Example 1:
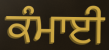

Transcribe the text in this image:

ਕੰਮਾਈ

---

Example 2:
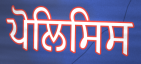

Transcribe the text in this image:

ਪੋਲਿਸਿਸ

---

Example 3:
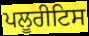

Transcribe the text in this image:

ਪਲੂਰੀਟਿਸ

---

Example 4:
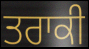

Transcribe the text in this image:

ਤਰਾਕੀ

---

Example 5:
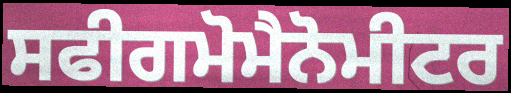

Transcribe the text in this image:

ਸਫੀਗਮੋਮੈਨੋਮੀਟਰ